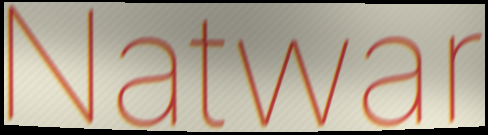
Natwar